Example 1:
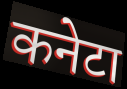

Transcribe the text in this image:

कनेटा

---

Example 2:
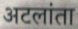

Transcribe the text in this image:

अटलांता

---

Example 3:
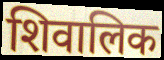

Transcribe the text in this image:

शिवालिक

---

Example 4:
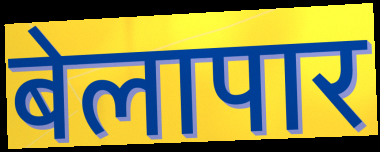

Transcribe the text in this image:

बेलापार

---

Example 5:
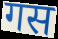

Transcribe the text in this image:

गस